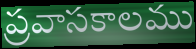
ప్రవాసకాలము